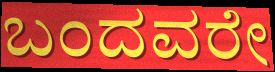
ಬಂದವರೇ